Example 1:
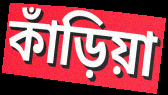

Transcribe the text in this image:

কাঁড়িয়া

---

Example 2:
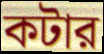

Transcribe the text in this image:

কটার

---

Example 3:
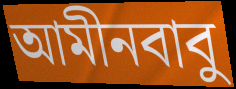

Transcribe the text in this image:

আমীনবাবু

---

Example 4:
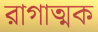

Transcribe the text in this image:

রাগাত্মক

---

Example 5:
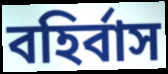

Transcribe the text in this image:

বহির্বাস